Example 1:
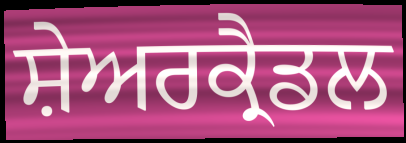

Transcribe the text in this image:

ਸ਼ੇਅਰਕ੍ਰੈਡਲ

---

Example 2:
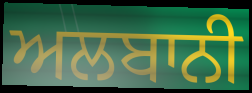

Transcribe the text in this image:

ਅਲਬਾਨੀ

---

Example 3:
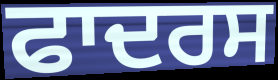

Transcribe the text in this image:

ਫਾਦਰਸ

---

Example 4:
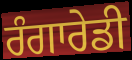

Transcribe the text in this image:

ਰੰਗਾਰੇਡੀ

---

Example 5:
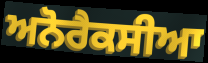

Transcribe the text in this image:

ਅਨੋਰੈਕਸੀਆ